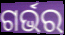
ଗର୍ଭର